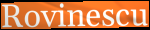
Rovinescu